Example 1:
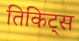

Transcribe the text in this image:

तिकिट्स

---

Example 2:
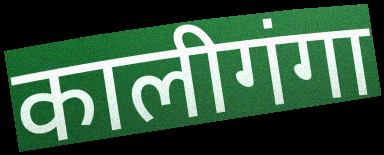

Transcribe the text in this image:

कालीगंगा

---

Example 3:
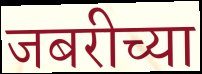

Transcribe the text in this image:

जबरीच्या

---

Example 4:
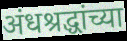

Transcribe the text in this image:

अंधश्रद्धांच्या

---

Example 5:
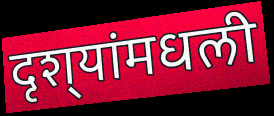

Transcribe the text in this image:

दृश्यांमधली